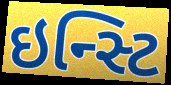
ઇન્સ્ટિ